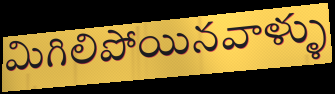
మిగిలిపోయినవాళ్ళు